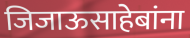
जिजाऊसाहेबांना